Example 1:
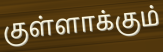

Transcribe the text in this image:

குள்ளாக்கும்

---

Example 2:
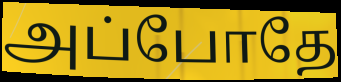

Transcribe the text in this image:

அப்போதே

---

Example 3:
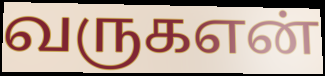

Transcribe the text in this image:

வருகஎன்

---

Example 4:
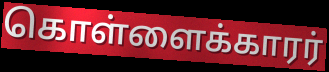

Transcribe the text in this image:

கொள்ளைக்காரர்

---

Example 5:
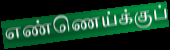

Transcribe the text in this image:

எண்ணெய்க்குப்